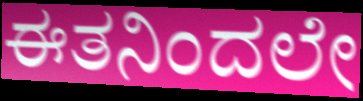
ಈತನಿಂದಲೇ